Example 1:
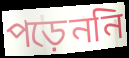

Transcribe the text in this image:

পড়েননি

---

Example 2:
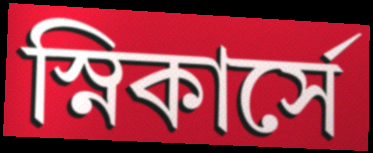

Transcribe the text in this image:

স্নিকার্সে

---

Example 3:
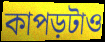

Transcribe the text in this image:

কাপড়টাও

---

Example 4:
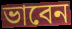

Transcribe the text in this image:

ভাবেন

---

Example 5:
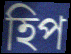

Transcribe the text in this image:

হিপ